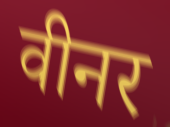
वीनर